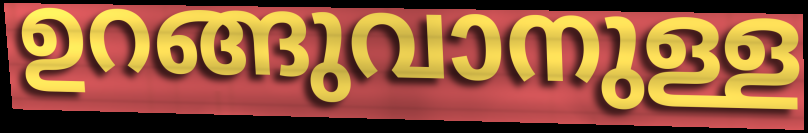
ഉറങ്ങുവാനുള്ള